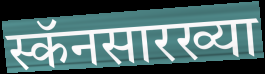
स्कॅनसारख्या